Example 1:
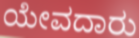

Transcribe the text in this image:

ಯೇವದಾರು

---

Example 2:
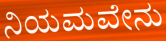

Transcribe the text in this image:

ನಿಯಮವೇನು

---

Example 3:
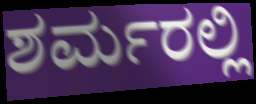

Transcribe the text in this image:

ಶರ್ಮರಲ್ಲಿ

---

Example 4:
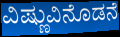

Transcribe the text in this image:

ವಿಷ್ಣುವಿನೊಡನೆ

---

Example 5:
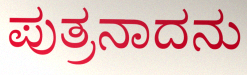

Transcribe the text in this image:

ಪುತ್ರನಾದನು